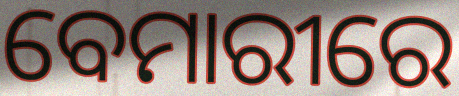
ବେମାରୀରେ